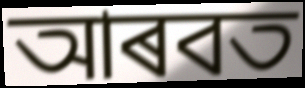
আৰবত